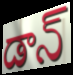
డాన్